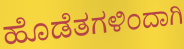
ಹೊಡೆತಗಳಿಂದಾಗಿ